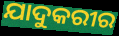
ଯାଦୁକରୀର